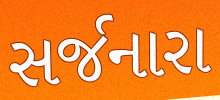
સર્જનારા